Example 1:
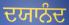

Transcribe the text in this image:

ਦਯਾਨੰਦ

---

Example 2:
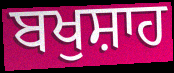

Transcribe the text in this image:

ਬਖੁਸ਼ਾਹ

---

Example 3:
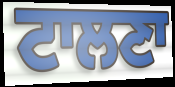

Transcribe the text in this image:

ਟਾਲਣਾ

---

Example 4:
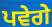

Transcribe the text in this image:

ਪਵੇਗੇ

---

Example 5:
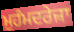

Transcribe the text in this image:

ਮੁਹੰਮਦਰੇਜ਼ਾ